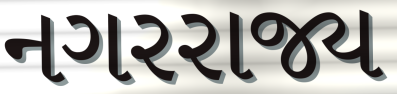
નગરરાજ્ય